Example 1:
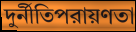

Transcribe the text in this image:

দুর্নীতিপরায়ণতা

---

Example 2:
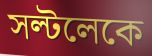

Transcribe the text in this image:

সল্টলেকে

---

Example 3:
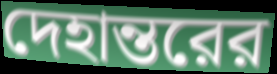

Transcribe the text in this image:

দেহান্তরের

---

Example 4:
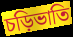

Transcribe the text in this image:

চড়িভাতি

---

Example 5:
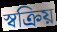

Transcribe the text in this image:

স্বক্রিয়